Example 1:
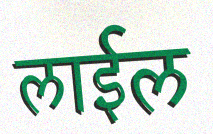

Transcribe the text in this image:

लाईल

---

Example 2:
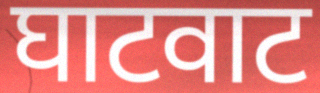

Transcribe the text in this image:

घाटवाट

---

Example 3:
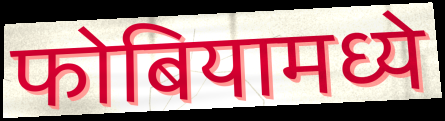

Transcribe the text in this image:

फोबियामध्ये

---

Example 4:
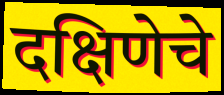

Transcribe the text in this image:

दक्षिणेचे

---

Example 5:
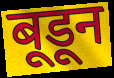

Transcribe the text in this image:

बूडून